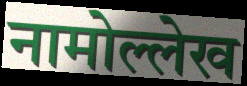
नामोल्लेख